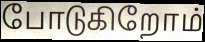
போடுகிறோம்